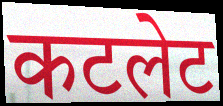
कटलेट